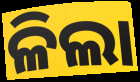
ଳିଲା